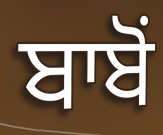
ਬਾਬੋਂ